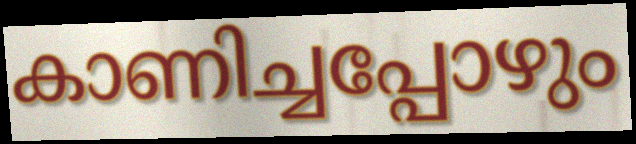
കാണിച്ചപ്പോഴും